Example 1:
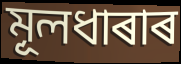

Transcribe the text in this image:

মূলধাৰাৰ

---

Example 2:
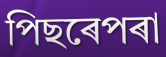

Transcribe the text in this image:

পিছৰেপৰা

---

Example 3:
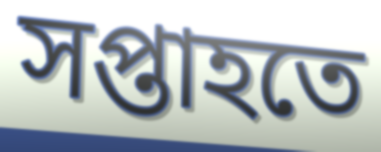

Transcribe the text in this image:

সপ্তাহতে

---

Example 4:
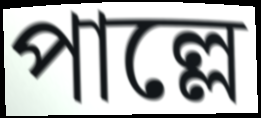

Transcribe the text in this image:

পাল্লে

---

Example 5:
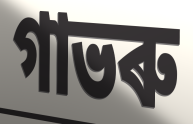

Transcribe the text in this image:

গাভৰু